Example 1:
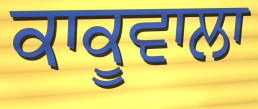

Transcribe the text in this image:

ਕਾਕੂਵਾਲਾ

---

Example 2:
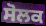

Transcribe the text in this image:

ਸੋਲਕ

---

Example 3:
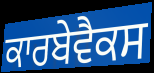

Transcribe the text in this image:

ਕਾਰਬੇਵੈਕਸ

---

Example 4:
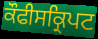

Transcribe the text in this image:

ਕੌਫੀਸਕ੍ਰਿਪਟ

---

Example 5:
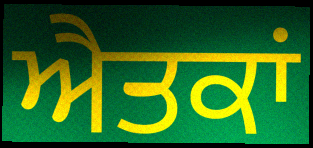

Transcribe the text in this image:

ਐਤਕਾਂ